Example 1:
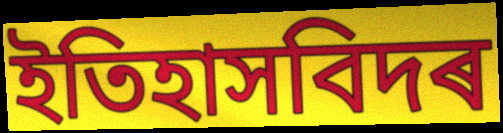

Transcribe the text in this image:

ইতিহাসবিদৰ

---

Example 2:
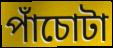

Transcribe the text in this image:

পাঁচোটা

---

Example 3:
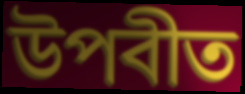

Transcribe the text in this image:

উপবীত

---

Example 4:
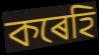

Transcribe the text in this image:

কৰেহি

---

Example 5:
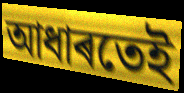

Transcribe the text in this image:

আধাৰতেই